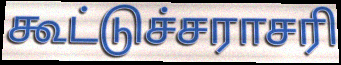
கூட்டுச்சராசரி